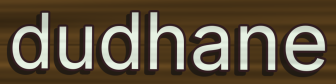
dudhane